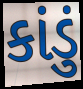
કાંડું